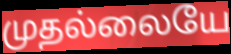
முதல்லையே